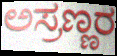
ಅಸ್ರಣ್ಣರ